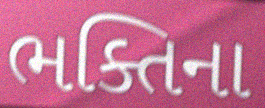
ભક્તિના